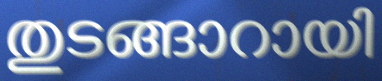
തുടങ്ങാറായി